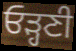
ਓੜ੍ਹਣੀ